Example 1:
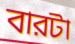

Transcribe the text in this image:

বারটা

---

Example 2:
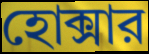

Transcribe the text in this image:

হোক্সার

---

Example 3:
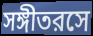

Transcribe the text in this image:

সঙ্গীতরসে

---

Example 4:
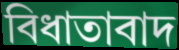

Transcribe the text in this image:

বিধাতাবাদ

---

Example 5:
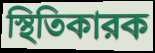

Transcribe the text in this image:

স্থিতিকারক